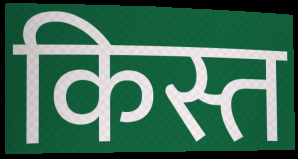
किस्त